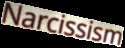
Narcissism